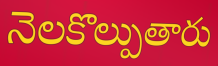
నెలకొల్పుతారు